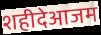
शहीदेआजम